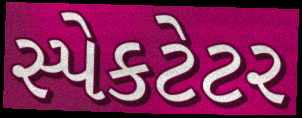
સ્પેકટેટર